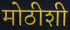
मोठीशी